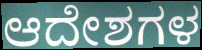
ಆದೇಶಗಳ